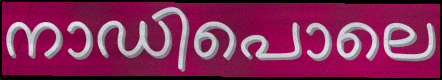
നാഡിപൊലെ